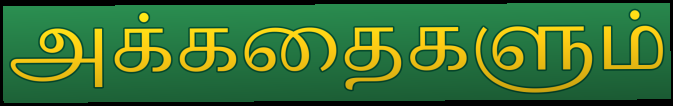
அக்கதைகளும்